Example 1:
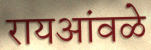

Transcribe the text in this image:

रायआंवळे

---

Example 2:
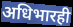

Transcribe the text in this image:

अधिभारही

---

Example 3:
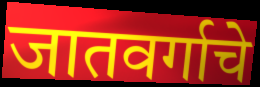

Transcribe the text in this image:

जातवर्गाचे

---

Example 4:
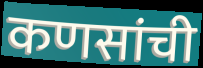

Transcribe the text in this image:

कणसांची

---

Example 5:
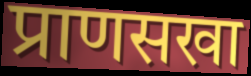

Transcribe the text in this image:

प्राणसखा